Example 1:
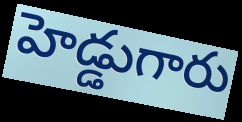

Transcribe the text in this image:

హెడ్డుగారు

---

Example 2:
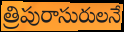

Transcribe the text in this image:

త్రిపురాసురులనే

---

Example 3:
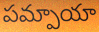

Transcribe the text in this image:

పమ్పాయా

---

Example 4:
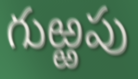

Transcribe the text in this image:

గుఱ్ఱపు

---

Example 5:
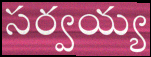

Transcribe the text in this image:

సర్వయ్య